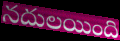
నదులయింది